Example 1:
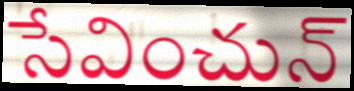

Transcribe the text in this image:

సేవించున్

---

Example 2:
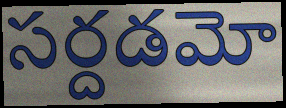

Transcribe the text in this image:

సర్దడమో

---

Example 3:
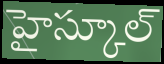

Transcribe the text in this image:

హైస్కూల్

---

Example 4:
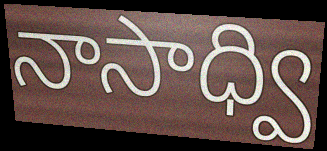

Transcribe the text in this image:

నాసాధ్వి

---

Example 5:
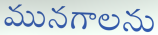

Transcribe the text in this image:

మునగాలను